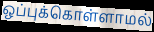
ஒப்புக்கொள்ளாமல்